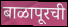
बाळापूरची